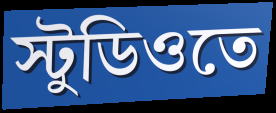
স্টুডিওতে